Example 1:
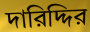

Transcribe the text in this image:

দারিদ্দির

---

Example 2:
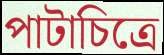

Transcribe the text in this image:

পাটাচিত্রে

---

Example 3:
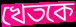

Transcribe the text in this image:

খেতকে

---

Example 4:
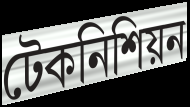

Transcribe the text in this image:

টেকনিশিয়ন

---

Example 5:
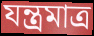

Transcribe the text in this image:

যন্ত্রমাত্র